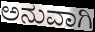
ಅನುವಾಗಿ